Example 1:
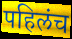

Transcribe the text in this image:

पहिलंच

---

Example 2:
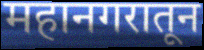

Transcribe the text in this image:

महानगरातून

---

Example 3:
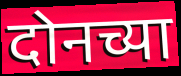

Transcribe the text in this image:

दोनच्या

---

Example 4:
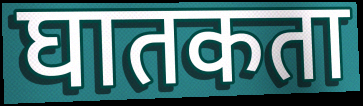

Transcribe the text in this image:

घातकता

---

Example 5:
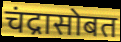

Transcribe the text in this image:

चंद्रासोबत